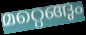
മറ്റെങ്ങും